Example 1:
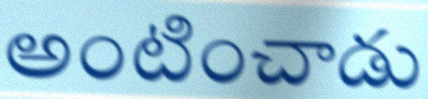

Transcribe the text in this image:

అంటించాడు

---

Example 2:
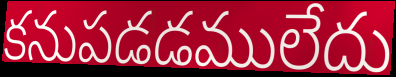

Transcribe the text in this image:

కనుపడడములేదు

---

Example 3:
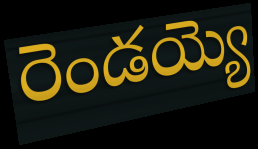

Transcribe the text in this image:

రెండయ్యె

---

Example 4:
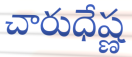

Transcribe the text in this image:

చారుధేష్ణ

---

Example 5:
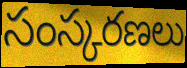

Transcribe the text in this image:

సంస్కరణలు